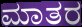
ಮಾತರ